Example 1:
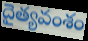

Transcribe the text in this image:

దైత్యవంశం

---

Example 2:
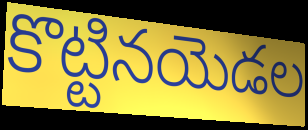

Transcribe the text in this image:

కొట్టినయెడల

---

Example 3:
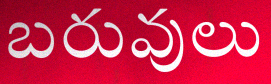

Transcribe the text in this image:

బరువులు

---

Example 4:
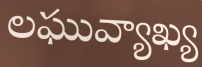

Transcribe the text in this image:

లఘువ్యాఖ్య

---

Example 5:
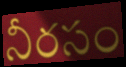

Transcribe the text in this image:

నీరసం